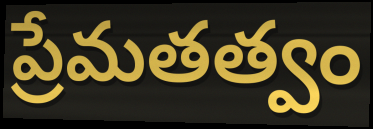
ప్రేమతత్వం